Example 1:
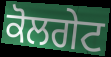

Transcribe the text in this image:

ਕੋਲਗੇਟ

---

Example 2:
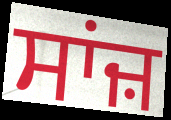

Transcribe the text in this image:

ਸਾਂਜ਼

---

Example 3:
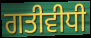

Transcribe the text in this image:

ਗਤੀਵੀਧੀ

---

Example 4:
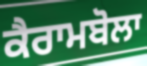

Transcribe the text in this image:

ਕੈਰਾਮਬੋਲਾ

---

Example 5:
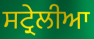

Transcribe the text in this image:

ਸਟ੍ਰੇਲੀਆ